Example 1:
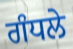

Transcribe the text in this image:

ਗੰਧਲੇ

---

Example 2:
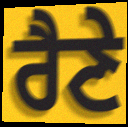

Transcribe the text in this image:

ਰੈਣੇ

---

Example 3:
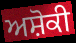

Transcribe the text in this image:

ਅਸ਼ੋਕੀ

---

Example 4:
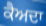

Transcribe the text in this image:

ਕੈਅਦਾ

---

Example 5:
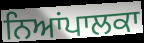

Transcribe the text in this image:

ਨਿਆਂਪਾਲਕਾ